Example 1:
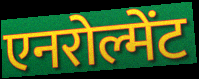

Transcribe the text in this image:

एनरोल्मेंट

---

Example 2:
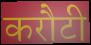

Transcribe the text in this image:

करौटी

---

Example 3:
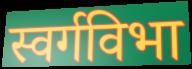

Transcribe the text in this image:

स्वर्गविभा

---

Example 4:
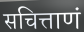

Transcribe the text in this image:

सचित्ताणं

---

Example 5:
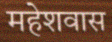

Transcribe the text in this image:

महेशवास